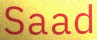
Saad